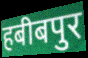
हबीबपुर